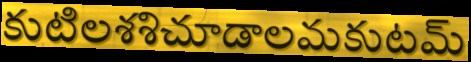
కుటిలశశిచూడాలమకుటమ్